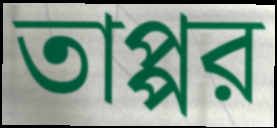
তাপ্পর